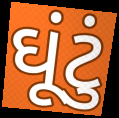
ઘૂંટું